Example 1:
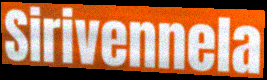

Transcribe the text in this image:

Sirivennela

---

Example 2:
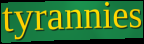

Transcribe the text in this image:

tyrannies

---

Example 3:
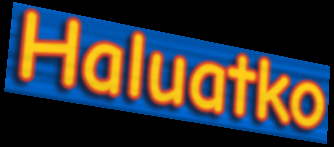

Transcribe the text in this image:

Haluatko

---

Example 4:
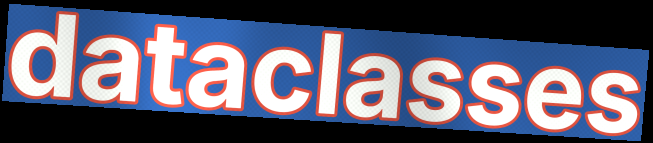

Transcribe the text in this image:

dataclasses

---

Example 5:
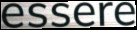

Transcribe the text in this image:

essere